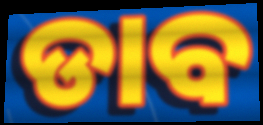
ଡାବ